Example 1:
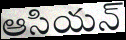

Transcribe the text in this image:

ఆసియన్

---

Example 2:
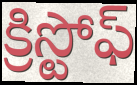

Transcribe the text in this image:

క్రిస్టోఫ్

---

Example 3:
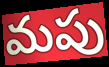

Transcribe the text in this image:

మపు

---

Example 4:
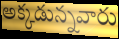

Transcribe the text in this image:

అక్కడున్నవారు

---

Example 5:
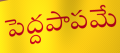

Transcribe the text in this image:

పెద్దపాపమే